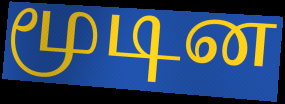
மூடின